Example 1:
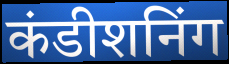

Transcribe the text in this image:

कंडीशनिंग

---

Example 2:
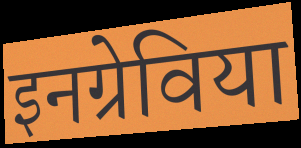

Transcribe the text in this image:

इनग्रेविया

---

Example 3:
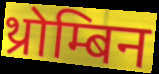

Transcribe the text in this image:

थ्रोम्बिन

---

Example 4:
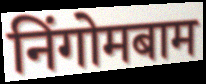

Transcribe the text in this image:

निंगोमबाम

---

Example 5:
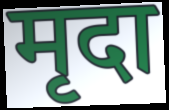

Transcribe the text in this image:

मृदा